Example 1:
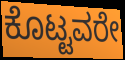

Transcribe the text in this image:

ಕೊಟ್ಟವರೇ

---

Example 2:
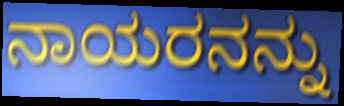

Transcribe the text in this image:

ನಾಯರನನ್ನು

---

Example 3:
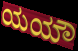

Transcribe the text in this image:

ಯಯೌ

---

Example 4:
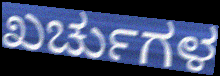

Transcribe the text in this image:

ಖರ್ಚುಗಳ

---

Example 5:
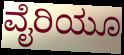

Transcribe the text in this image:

ವೈರಿಯೂ